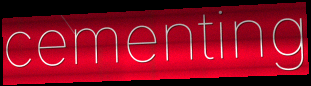
cementing